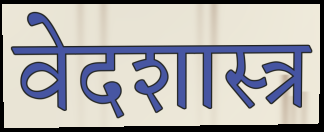
वेदशास्त्र